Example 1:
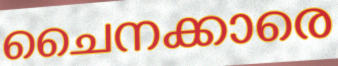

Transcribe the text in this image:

ചൈനക്കാരെ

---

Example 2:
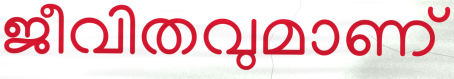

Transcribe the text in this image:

ജീവിതവുമാണ്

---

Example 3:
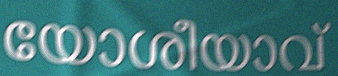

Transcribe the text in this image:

യോശീയാവ്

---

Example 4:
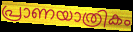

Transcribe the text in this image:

പ്രാണയാത്രികം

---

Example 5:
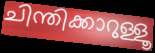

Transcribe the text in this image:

ചിന്തിക്കാറുള്ളൂ